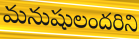
మనుషులందరిని